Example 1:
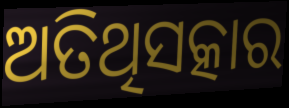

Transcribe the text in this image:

ଅତିଥିସତ୍କାର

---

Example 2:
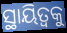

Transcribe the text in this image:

ସ୍ଥାୟିତ୍ୱକୁ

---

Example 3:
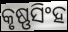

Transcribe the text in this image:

କୃଷ୍ଣସିଂହ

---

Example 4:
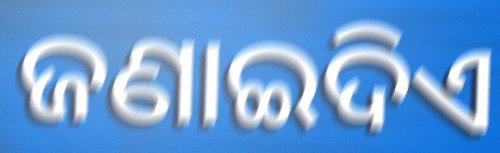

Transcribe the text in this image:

ଜଣାଇଦିଏ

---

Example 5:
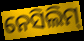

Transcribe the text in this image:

ନେସିଲିମ୍